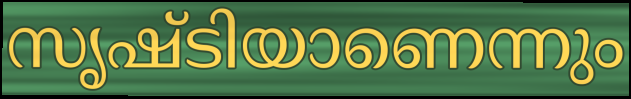
സൃഷ്ടിയാണെന്നും